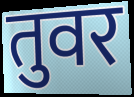
तुवर